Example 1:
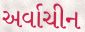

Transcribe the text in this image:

અર્વાચીન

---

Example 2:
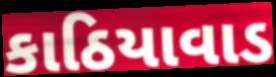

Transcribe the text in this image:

કાઠિયાવાડ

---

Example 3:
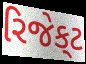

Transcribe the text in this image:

રિજેક્‌ટ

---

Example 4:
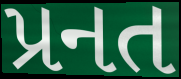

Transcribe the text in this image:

પ્રનત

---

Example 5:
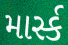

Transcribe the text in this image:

માર્સ્ક